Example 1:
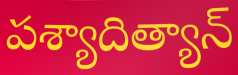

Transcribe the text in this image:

పశ్యాదిత్యాన్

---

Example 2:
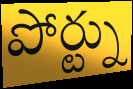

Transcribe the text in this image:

పోర్ట్ను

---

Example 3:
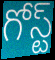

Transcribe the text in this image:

గోస్ట్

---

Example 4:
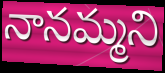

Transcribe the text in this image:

నానమ్మని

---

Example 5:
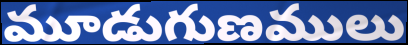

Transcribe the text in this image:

మూడుగుణములు